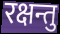
रक्षन्तु